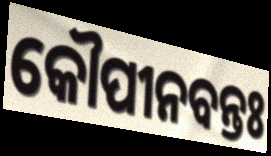
କୌପୀନବନ୍ତଃ